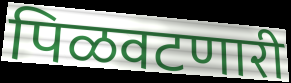
पिळवटणारी